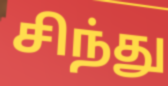
சிந்து